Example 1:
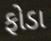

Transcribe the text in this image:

ફોડા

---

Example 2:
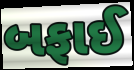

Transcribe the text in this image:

બફાઈ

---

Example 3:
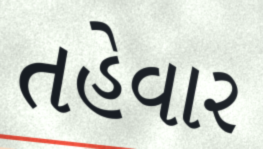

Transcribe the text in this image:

તહેવાર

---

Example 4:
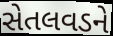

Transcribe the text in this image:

સેતલવડને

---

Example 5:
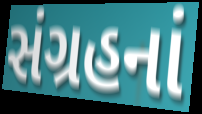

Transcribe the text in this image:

સંગ્રહનાં